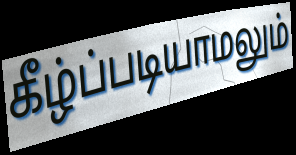
கீழ்ப்படியாமலும்